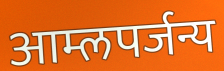
आम्लपर्जन्य